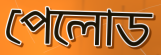
পেলোড